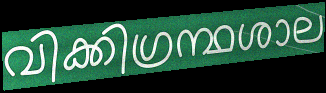
വിക്കിഗ്രന്ഥശാല